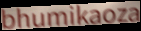
bhumikaoza